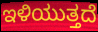
ಇಳಿಯುತ್ತದೆ